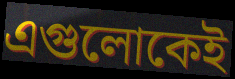
এগুলোকেই